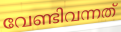
വേണ്ടിവന്നത്